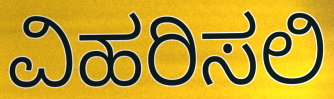
ವಿಹರಿಸಲಿ